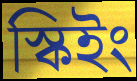
স্কিইং